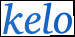
kelo